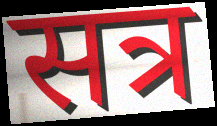
सत्र